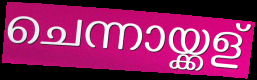
ചെന്നായ്ക്കള്